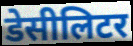
डेसीलिटर